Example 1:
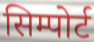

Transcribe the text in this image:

सिम्पोर्ट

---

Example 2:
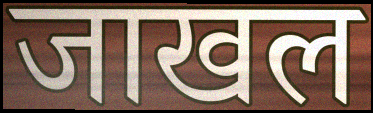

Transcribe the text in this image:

जाखल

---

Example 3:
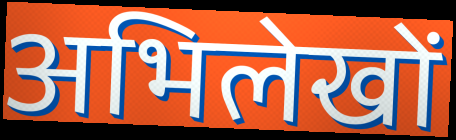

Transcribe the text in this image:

अभिलेखों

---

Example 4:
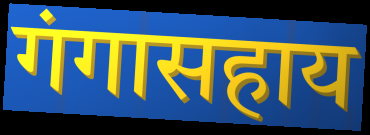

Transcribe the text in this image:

गंगासहाय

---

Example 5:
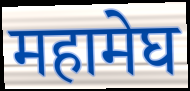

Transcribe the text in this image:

महामेघ